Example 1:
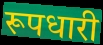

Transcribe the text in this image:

रूपधारी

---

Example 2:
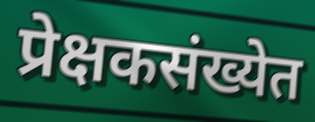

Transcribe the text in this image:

प्रेक्षकसंख्येत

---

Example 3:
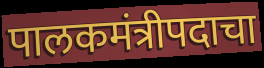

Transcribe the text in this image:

पालकमंत्रीपदाचा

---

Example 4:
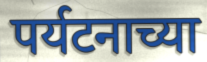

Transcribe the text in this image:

पर्यटनाच्या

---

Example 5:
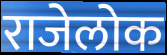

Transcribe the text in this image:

राजेलोक